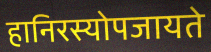
हानिरस्योपजायते